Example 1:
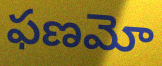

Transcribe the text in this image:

ఫణమో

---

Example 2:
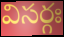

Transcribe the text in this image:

విసర్గః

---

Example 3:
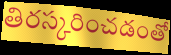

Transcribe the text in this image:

తిరస్కరించడంతో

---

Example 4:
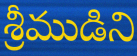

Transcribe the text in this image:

శ్రీముడిని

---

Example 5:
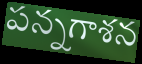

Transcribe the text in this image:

పన్నగాశన